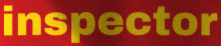
inspector